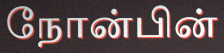
நோன்பின்